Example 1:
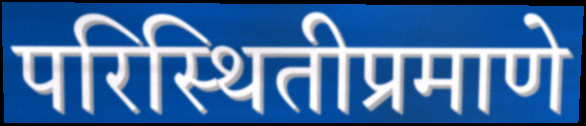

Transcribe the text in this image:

परिस्थितीप्रमाणे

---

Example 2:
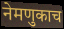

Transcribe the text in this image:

नेमणुकाच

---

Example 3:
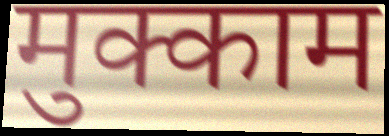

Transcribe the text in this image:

मुक्‍काम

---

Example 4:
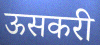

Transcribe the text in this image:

ऊसकरी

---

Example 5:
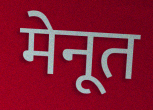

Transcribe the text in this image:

मेनूत